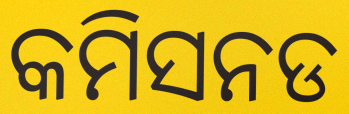
କମିସନଡ